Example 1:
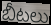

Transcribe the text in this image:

బీటలు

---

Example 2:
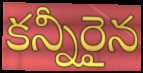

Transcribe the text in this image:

కన్నీరైన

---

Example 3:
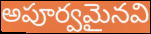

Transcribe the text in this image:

అపూర్వమైనవి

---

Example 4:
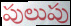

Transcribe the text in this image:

పులుపు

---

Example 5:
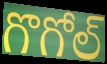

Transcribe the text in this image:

గొగోల్